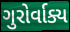
ગુરોર્વાક્ય